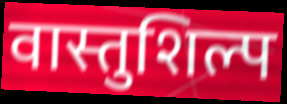
वास्तुशिल्प